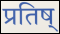
प्रतिष्